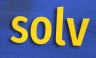
solv